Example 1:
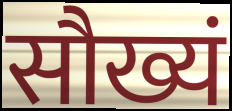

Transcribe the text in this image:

सौख्यं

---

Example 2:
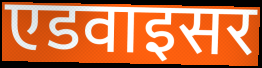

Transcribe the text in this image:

एडवाइसर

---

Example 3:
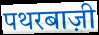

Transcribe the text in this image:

पथरबाज़ी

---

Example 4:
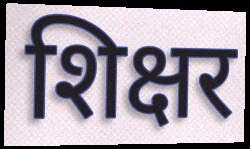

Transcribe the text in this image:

शिक्षर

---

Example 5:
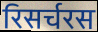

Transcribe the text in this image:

रिसर्चरस